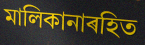
মালিকানাৰহিত